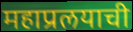
महाप्रलयाची